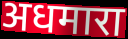
अधमारा